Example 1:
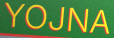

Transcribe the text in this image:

YOJNA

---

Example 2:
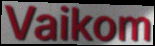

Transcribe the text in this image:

Vaikom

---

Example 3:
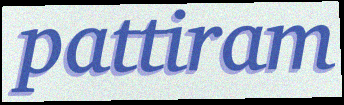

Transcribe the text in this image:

pattiram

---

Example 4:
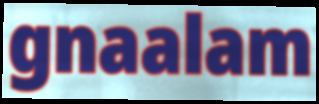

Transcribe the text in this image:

gnaalam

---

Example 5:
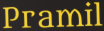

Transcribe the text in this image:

Pramil